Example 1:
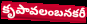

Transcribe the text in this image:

కృపావలంబనకరీ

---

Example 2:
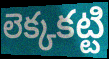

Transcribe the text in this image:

లెక్కకట్టి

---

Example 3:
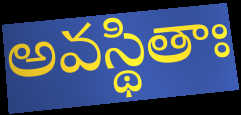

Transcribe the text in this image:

అవస్థితాః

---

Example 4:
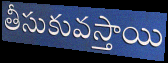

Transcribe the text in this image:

తీసుకువస్తాయి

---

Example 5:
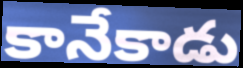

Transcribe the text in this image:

కానేకాడు